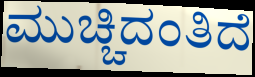
ಮುಚ್ಚಿದಂತಿದೆ